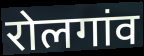
रोलगांव